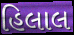
હિલાલ